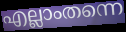
എല്ലാംതന്നെ